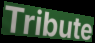
Tribute